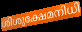
ശിശുക്ഷേമനിധി